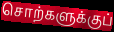
சொற்களுக்குப்